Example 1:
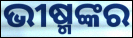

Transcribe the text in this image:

ଭୀଷ୍ମଙ୍କର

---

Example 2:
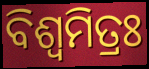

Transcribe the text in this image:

ବିଶ୍ବମିତ୍ରଃ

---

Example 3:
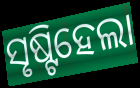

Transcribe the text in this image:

ସୃଷ୍ଟିହେଲା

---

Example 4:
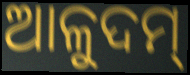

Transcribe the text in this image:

ଆଳୁଦମ୍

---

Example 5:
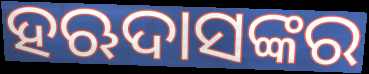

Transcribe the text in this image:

ହଋଦାସଙ୍କର